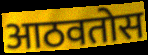
आठवतोस